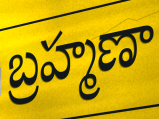
బ్రహ్మణా